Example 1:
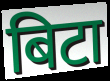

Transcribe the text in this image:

बिटा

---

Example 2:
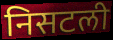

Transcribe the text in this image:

निसटली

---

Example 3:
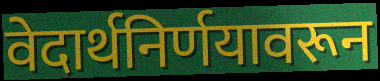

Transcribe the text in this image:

वेदार्थनिर्णयावरून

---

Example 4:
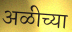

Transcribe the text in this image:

अळीच्या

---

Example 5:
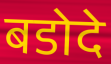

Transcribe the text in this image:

बडोदे